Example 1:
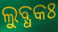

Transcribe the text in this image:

ଲୁବ୍ଧକଃ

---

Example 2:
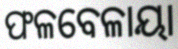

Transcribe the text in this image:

ଫଳବେଳାୟା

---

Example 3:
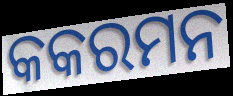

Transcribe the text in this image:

କକରମନ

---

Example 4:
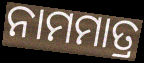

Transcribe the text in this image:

ନାମମାତ୍ର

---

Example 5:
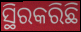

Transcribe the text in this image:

ସ୍ଥିରକରିଛି